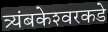
त्र्यंबकेश्वरकडे